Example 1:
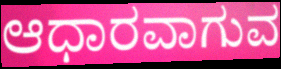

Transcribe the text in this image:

ಆಧಾರವಾಗುವ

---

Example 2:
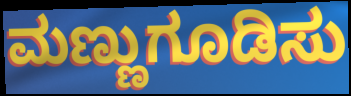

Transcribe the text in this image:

ಮಣ್ಣುಗೂಡಿಸು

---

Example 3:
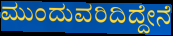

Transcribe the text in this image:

ಮುಂದುವರಿದಿದ್ದೇನೆ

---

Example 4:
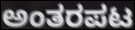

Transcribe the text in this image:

ಅಂತರಪಟ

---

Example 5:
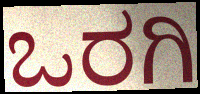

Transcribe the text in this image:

ಒರಗಿ